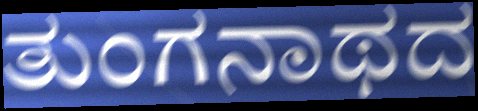
ತುಂಗನಾಥದ